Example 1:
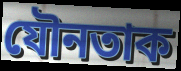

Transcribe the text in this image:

যৌনতাক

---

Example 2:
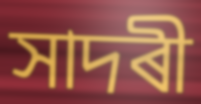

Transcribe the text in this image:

সাদৰী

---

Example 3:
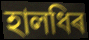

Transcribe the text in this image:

হালধিৰ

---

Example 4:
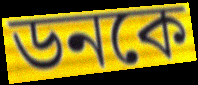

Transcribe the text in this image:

ডনকে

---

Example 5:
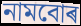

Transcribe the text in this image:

নামবোৰ